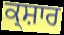
ਕ੍ਸ਼ਾਰ